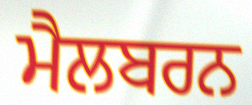
ਮੈਲਬਰਨ